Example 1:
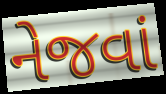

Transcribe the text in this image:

નેજવાં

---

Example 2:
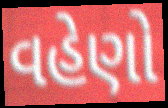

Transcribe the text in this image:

વહેણો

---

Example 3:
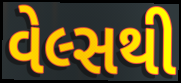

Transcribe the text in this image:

વેલ્સથી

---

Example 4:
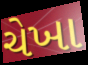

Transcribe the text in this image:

ચેખા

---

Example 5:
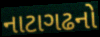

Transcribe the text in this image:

નાટાગઢનો